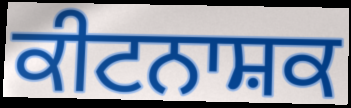
ਕੀਟਨਾਸ਼ਕ